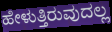
ಹೇಳುತ್ತಿರುವುದಲ್ಲ